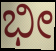
ಭೀ